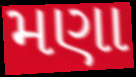
મણા